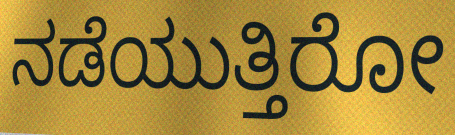
ನಡೆಯುತ್ತಿರೋ